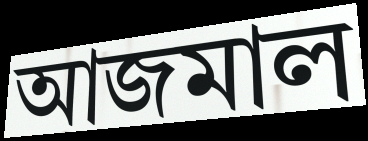
আজমাল